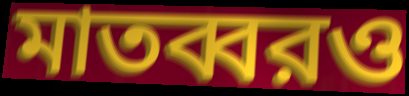
মাতব্বরও